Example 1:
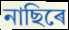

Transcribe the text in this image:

নাছিৰে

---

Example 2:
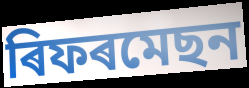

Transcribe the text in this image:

ৰিফৰমেছন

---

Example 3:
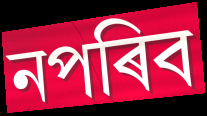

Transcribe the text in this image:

নপৰিব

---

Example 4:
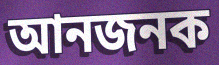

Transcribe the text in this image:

আনজনক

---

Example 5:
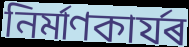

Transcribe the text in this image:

নিৰ্মাণকাৰ্যৰ